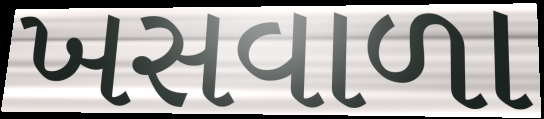
ખસવાળા